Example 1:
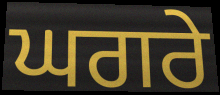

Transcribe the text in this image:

ਘਗਰੇ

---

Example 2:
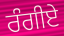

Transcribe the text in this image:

ਰੰਗੀਏ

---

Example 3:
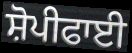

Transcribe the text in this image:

ਸ਼ੋਪੀਫਾਈ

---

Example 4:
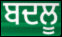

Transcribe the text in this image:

ਬਦਲੂ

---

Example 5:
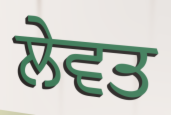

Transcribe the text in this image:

ਲੇਵਤ